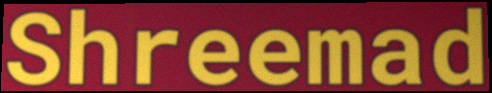
Shreemad